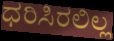
ಧರಿಸಿರಲಿಲ್ಲ